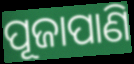
ପୂଜାପାଣି